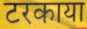
टरकाया